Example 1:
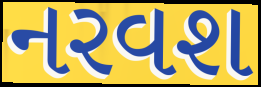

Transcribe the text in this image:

નરવશ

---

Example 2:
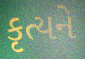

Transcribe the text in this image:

કૃત્યને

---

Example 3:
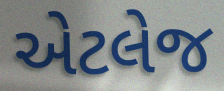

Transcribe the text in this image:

એટલેજ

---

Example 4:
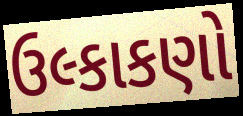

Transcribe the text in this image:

ઉલ્કાકણો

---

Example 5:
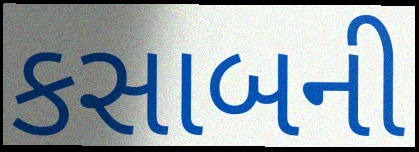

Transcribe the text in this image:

કસાબની